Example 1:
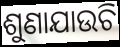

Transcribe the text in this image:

ଶୁଣାଯାଉଚି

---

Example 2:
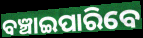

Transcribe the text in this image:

ବଞ୍ଚାଇପାରିବେ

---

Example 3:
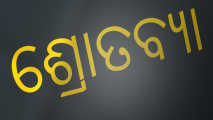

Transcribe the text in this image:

ଶ୍ରୋତବ୍ୟା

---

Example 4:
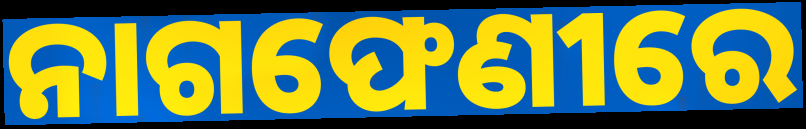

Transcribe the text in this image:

ନାଗଫେଣୀରେ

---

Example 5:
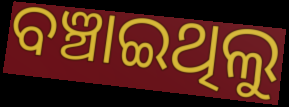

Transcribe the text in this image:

ବଞ୍ଚାଇଥିଲୁ